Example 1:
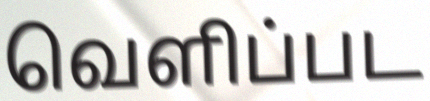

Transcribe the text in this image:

வெளிப்பட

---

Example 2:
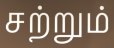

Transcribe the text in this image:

சற்றும்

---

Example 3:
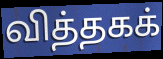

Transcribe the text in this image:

வித்தகக்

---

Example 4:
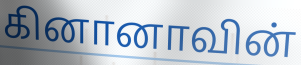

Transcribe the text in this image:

கினானாவின்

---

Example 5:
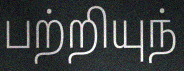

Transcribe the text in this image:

பற்றியுந்